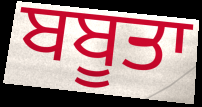
ਬਬੂਤਾ